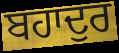
ਬਹਾਦੁਰ